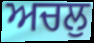
ਅਚਲੁ